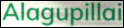
Alagupillai